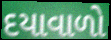
દયાવાળો